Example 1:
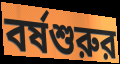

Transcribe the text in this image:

বর্ষশুরুর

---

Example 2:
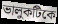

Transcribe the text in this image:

ভালুকটিকে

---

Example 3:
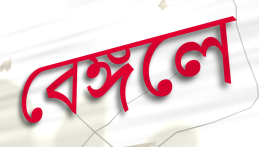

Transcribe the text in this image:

বেঙ্গলে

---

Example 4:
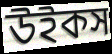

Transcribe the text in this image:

উইকস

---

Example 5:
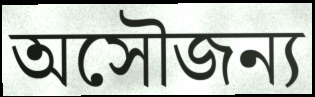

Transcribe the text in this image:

অসৌজন্য